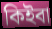
কিইবা